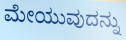
ಮೇಯುವುದನ್ನು